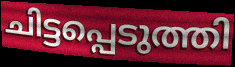
ചിട്ടപ്പെടുത്തി